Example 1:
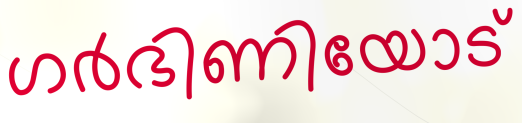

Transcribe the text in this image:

ഗർഭിണിയോട്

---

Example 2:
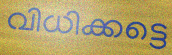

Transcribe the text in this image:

വിധിക്കട്ടെ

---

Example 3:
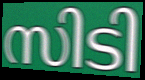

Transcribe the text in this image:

സിടി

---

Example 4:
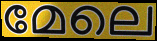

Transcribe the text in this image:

മേലെ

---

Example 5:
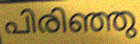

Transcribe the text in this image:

പിരിഞ്ഞു